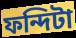
ফন্দিটা